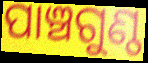
ପାଞ୍ଚଗୁଣ୍ଠ